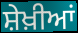
ਸ਼ੇਖ਼ੀਆਂ